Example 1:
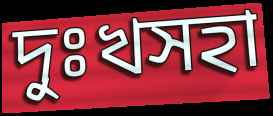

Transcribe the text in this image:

দুঃখসহা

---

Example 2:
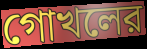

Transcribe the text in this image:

গোখলের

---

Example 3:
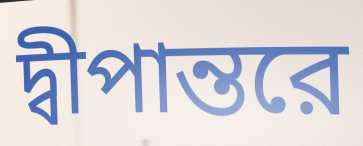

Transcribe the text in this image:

দ্বীপান্তরে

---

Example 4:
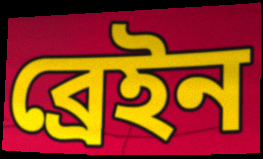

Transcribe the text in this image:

ব্রেইন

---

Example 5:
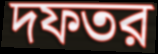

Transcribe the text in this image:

দফতর